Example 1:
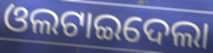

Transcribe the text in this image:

ଓଲଟାଇଦେଲା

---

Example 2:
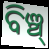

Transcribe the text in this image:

ବିଞ୍ଚ୍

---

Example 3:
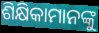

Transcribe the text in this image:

ଶିକ୍ଷିକାମାନଙ୍କୁ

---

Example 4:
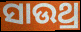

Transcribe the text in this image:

ସାଉଥ୍ର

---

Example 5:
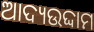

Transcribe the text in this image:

ଆଦ୍ୟଉଦ୍ଦାମ